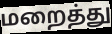
மறைத்து